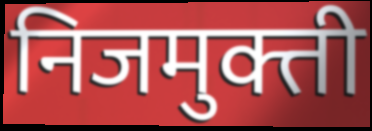
निजमुक्ती